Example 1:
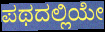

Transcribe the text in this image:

ಪಥದಲ್ಲಿಯೇ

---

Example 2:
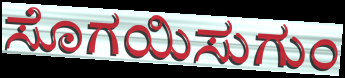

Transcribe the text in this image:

ಸೊಗಯಿಸುಗುಂ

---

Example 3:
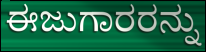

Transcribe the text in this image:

ಈಜುಗಾರರನ್ನು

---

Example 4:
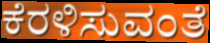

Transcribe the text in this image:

ಕೆರಳಿಸುವಂತೆ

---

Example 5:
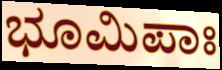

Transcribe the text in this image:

ಭೂಮಿಪಾಃ